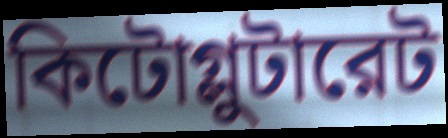
কিটোগ্লুটারেট